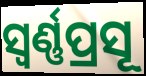
ସ୍ଵର୍ଣ୍ଣପ୍ରସୂ